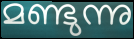
മണ്ടുന്നു